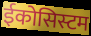
ईकोसिस्‍टम